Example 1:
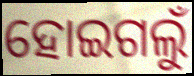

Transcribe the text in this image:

ହୋଇଗଲୁଁ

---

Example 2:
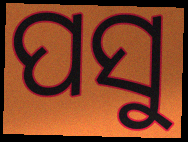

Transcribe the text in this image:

ପସୁ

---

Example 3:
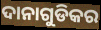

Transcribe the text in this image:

ଦାନାଗୁଡିକର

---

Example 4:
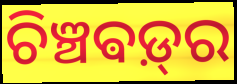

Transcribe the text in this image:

ଚିଞ୍ଚଵଡ଼୍‌ର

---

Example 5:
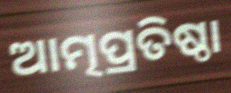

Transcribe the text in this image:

ଆତ୍ମପ୍ରତିଷ୍ଠା